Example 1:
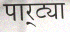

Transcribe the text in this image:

पार्ट्या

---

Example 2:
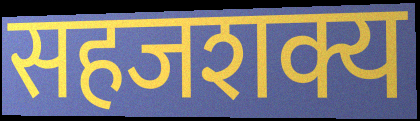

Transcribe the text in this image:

सहजशक्य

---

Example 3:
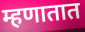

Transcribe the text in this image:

म्हणातात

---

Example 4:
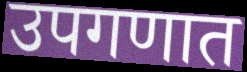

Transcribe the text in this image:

उपगणात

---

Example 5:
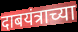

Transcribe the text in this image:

दाबयंत्राच्या